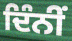
ਦਿੰਨੀਂ